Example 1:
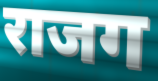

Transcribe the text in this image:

राजग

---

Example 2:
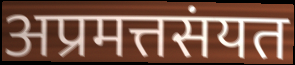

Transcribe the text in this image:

अप्रमत्तसंयत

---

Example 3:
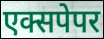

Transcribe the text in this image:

एक्सपेपर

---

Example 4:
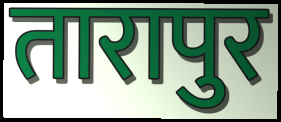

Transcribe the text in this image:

तारापुर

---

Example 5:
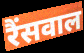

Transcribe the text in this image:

रैंसवाल